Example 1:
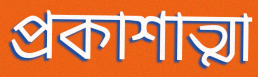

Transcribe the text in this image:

প্রকাশাত্মা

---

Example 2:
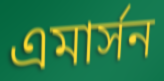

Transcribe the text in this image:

এমার্সন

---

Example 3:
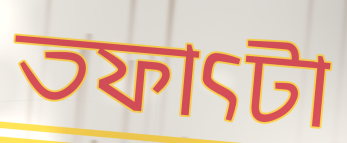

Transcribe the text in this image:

তফাৎটা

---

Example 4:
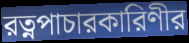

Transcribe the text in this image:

রত্নপাচারকারিণীর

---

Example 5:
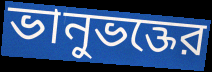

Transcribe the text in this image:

ভানুভক্তের